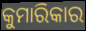
କୁମାରିକାର